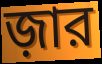
জ়ার